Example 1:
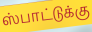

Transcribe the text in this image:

ஸ்பாட்டுக்கு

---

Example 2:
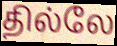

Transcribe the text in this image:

தில்லே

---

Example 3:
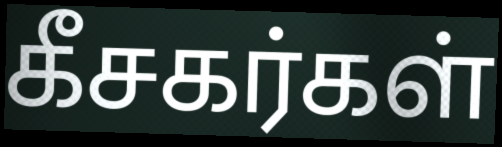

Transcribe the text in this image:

கீசகர்கள்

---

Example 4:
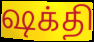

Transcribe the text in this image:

ஷக்தி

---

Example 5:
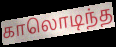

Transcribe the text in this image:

காலொடிந்த